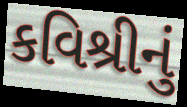
કવિશ્રીનું